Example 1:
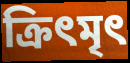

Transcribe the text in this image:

ক্রিৎমৃৎ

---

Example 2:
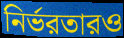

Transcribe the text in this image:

নির্ভরতারও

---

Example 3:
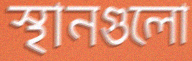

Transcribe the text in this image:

স্থানগুলো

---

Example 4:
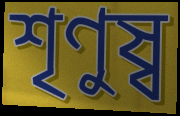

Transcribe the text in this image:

শৃণুষ্ব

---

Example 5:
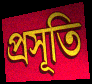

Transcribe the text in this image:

প্রসূতি